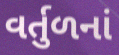
વર્તુળનાં